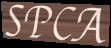
SPCA